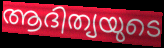
ആദിത്യയുടെ